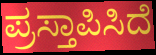
ಪ್ರಸ್ತಾಪಿಸಿದೆ